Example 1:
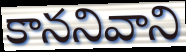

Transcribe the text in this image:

కాననివాని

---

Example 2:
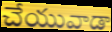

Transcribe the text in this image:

చేయువాడా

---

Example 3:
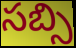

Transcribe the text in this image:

సబ్సి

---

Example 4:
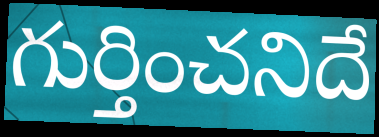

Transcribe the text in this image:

గుర్తించనిదే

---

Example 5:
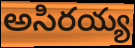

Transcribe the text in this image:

అసిరయ్య